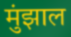
मुंझाल